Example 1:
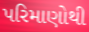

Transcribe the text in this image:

પરિમાણોથી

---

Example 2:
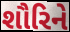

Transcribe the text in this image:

શૌરિને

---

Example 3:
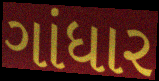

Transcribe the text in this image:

ગાંધાર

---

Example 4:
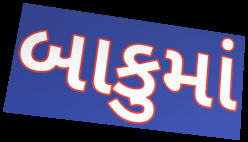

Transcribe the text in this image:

બાકુમાં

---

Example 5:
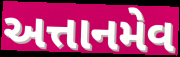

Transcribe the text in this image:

અત્તાનમેવ